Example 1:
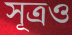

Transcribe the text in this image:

সূত্রও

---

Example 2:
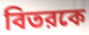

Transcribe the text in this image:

বিতরকে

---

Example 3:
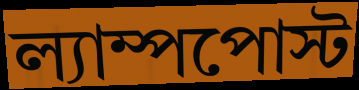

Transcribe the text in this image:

ল্যাম্পপোস্ট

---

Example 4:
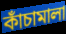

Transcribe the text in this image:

কাঁচামালা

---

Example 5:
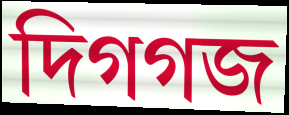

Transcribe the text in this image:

দিগগজ